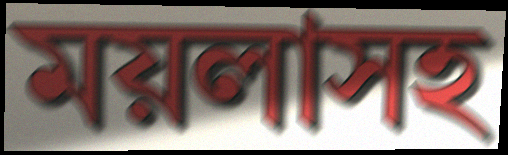
ময়লাসহ